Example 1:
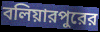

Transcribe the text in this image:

বলিয়ারপুরের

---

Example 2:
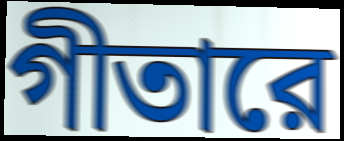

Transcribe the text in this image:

গীতারে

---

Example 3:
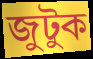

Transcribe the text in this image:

জুটুক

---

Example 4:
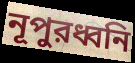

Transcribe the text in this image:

নূপুরধ্বনি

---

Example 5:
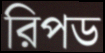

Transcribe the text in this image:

রিপড